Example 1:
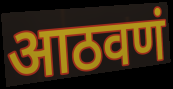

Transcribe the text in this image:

आठवणं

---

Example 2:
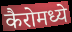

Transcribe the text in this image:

कैरोमध्ये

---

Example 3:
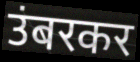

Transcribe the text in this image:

उंबरकर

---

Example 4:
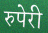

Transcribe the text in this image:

रुपेरी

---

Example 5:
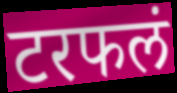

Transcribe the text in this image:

टरफलं